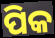
ପିକ